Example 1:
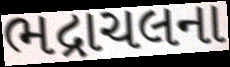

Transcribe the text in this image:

ભદ્રાચલના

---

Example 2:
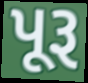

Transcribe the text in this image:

પૂરૂ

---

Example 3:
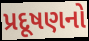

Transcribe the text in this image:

પ્રદૂષણનો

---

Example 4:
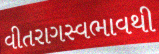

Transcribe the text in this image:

વીતરાગસ્વભાવથી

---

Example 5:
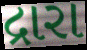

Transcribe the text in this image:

દ્રારા